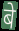
बे